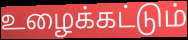
உழைக்கட்டும்